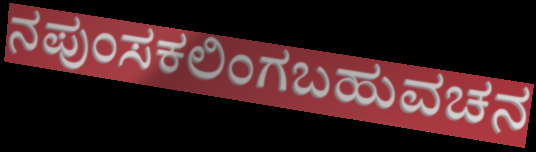
ನಪುಂಸಕಲಿಂಗಬಹುವಚನ